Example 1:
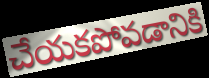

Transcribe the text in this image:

చేయకపోవడానికి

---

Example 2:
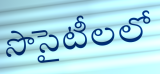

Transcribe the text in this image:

సొసైటీలలో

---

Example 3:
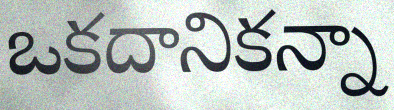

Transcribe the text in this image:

ఒకదానికన్నా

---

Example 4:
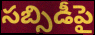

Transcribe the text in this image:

సబ్సిడీపై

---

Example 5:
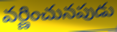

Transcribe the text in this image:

వర్ణించునపుడు